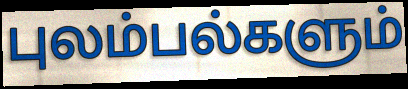
புலம்பல்களும்